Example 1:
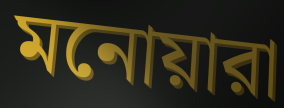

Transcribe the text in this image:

মনোয়ারা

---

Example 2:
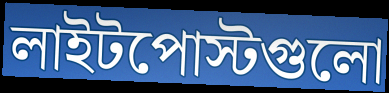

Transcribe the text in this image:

লাইটপোস্টগুলো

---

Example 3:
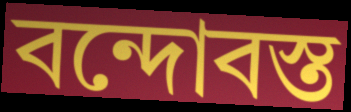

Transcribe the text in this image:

বন্দোবস্ত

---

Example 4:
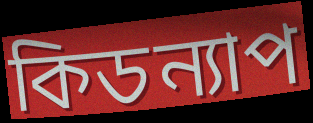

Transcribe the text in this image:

কিডন্যাপ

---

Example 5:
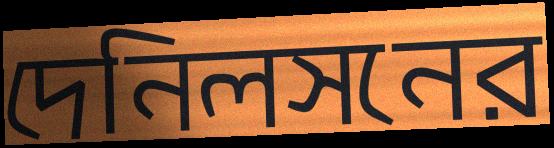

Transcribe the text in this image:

দেনিলসনের